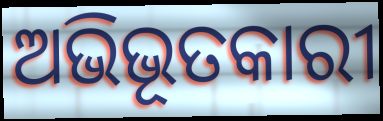
ଅଭିଭୂତକାରୀ